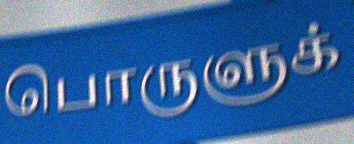
பொருளுக்